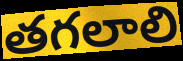
తగలాలి